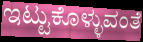
ಇಟ್ಟುಕೊಳ್ಳುವಂತೆ